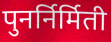
पुनर्निर्मिती